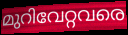
മുറിവേറ്റവരെ